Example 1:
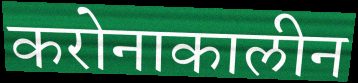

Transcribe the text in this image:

करोनाकालीन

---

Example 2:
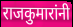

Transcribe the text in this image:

राजकुमारांनी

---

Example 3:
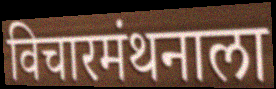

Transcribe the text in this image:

विचारमंथनाला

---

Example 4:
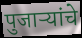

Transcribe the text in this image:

पुजाऱ्यांचे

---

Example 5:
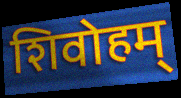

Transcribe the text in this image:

शिवोहम्